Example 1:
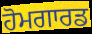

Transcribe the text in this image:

ਹੋਮਗਾਰਡ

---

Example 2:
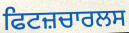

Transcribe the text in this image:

ਫਿਟਜ਼ਚਾਰਲਸ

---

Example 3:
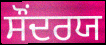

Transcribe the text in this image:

ਸੌਂਦਰਯ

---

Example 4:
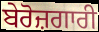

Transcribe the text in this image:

ਬੇਰੋਜ਼ਗਾਰੀ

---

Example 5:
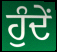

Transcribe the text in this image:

ਹੁੰਦੇਂ